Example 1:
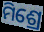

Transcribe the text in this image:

ମିଶ୍ରେ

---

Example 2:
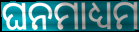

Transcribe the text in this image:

ଘନମାଧ୍ୟମ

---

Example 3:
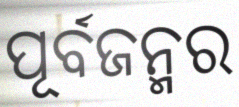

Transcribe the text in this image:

ପୂର୍ବଜନ୍ମର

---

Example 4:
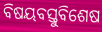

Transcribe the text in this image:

ବିଷୟବସ୍ତୁବିଶେଷ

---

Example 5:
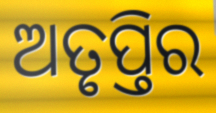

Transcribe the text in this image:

ଅତୃପ୍ତିର